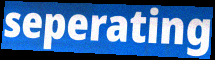
seperating